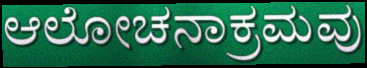
ಆಲೋಚನಾಕ್ರಮವು